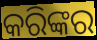
କରିଙ୍କର